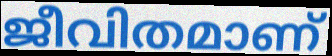
ജീവിതമാണ്